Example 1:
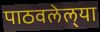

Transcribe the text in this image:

पाठवलेल्या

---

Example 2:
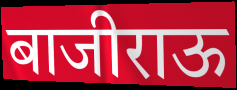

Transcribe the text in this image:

बाजीराऊ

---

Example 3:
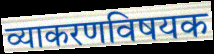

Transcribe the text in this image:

व्याकरणविषयक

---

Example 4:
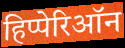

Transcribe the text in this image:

हिप्पेरिऑन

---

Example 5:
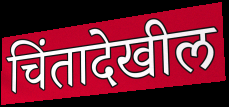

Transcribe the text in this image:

चिंतादेखील